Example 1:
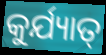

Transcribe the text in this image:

କୁର୍ଯ୍ୟାତ୍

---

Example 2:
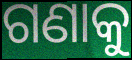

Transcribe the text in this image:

ଗଣାକୁ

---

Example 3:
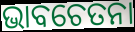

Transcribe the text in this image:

ଭାବଚେତନା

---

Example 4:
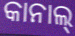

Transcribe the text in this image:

କାନାଲ୍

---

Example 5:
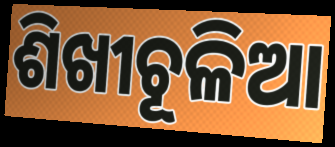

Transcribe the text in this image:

ଶିଖୀଚୂଳିଆ